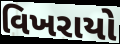
વિખરાયો